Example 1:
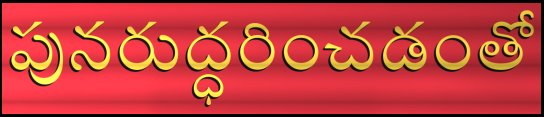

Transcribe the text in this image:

పునరుద్ధరించడంతో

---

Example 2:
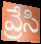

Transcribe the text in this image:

వ్రేసి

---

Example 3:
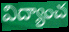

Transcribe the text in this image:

విద్యాంచ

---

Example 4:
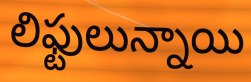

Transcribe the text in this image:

లిఫ్టులున్నాయి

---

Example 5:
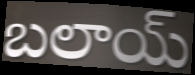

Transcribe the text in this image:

బలాయ్